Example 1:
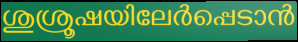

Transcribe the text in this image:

ശുശ്രൂഷയിലേർപ്പെടാൻ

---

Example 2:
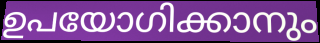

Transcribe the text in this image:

ഉപയോഗിക്കാനും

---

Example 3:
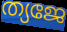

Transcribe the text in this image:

ത്യജേ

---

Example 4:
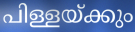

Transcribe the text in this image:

പിള്ളയ്ക്കും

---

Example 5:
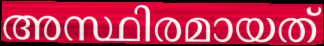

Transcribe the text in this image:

അസ്ഥിരമായത്